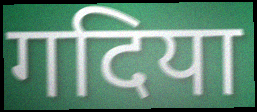
गदिया